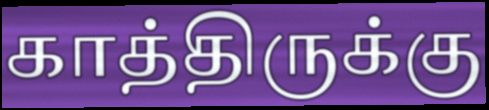
காத்திருக்கு